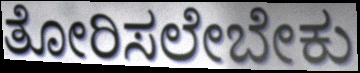
ತೋರಿಸಲೇಬೇಕು